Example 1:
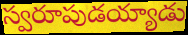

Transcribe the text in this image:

స్వరూపుడయ్యాడు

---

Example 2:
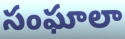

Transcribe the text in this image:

సంఘాలా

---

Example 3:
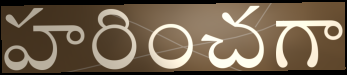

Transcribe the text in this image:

హరించగా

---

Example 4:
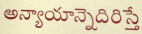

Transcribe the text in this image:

అన్యాయాన్నెదిరిస్తే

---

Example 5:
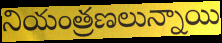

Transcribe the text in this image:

నియంత్రణలున్నాయి